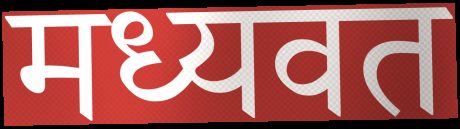
मध्यवत